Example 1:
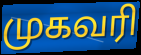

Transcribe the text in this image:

முகவரி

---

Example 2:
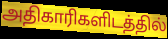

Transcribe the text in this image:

அதிகாரிகளிடத்தில்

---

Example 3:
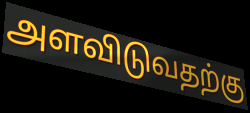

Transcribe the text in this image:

அளவிடுவதற்கு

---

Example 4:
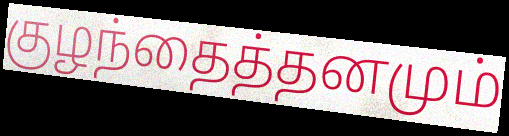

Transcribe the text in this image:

குழந்தைத்தனமும்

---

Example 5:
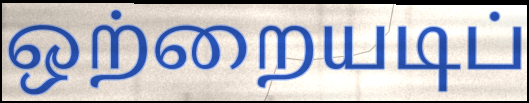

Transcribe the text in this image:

ஒற்றையடிப்